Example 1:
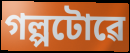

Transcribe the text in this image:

গল্পটোৱে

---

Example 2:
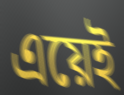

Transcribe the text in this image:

এয়েই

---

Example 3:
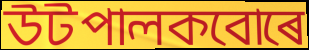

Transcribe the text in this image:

উটপালকবোৰে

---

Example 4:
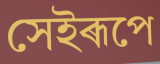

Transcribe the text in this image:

সেইৰূপে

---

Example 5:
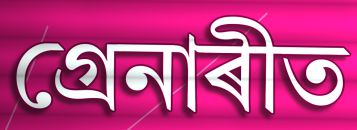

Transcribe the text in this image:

গ্ৰেনাৰীত